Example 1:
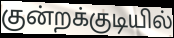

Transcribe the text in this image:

குன்றக்குடியில்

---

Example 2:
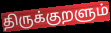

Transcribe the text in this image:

திருக்குறளும்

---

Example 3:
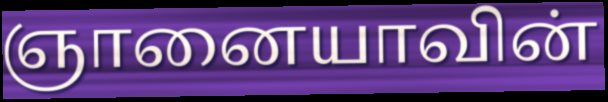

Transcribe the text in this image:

ஞானையாவின்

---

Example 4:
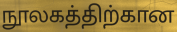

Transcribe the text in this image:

நூலகத்திற்கான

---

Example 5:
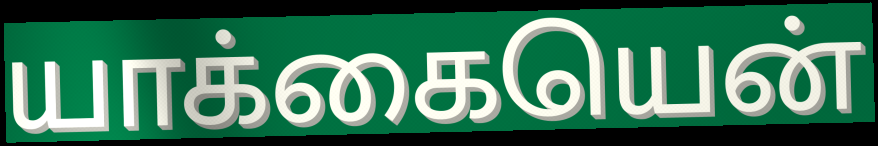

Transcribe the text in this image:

யாக்கையென்